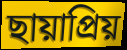
ছায়াপ্রিয়